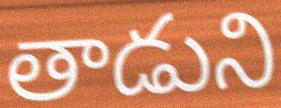
తాడుని